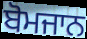
ਬੋਮਜਾਨ